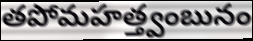
తపోమహత్త్వంబునం